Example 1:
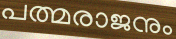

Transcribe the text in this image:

പത്മരാജനും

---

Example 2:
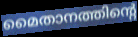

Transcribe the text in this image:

മൈതാനത്തിന്റെ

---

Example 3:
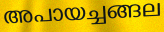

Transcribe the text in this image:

അപായച്ചങ്ങല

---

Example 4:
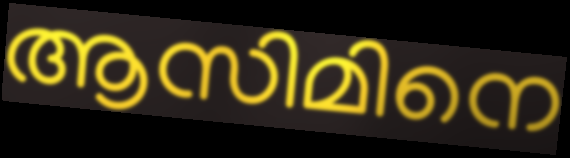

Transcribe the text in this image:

ആസിമിനെ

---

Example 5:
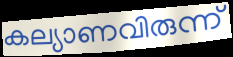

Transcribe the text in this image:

കല്യാണവിരുന്ന്